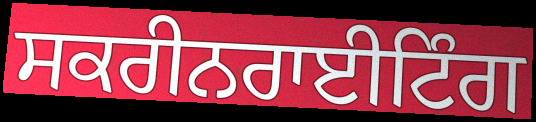
ਸਕਰੀਨਰਾਈਟਿੰਗ